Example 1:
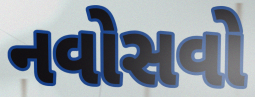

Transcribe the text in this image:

નવોસવો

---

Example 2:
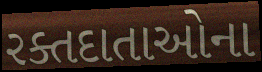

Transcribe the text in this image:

રક્તદાતાઓના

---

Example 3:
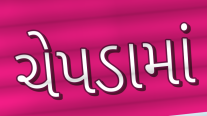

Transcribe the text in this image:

ચેપડામાં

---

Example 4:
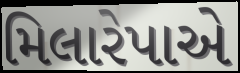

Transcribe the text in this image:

મિલારેપાએ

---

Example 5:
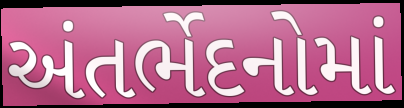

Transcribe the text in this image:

અંતર્ભેદનોમાં